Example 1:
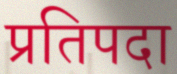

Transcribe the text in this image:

प्रतिपदा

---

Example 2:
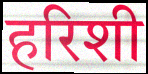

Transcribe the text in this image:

हरिशी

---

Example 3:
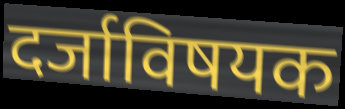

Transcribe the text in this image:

दर्जाविषयक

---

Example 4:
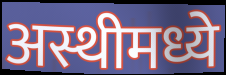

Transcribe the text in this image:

अस्थीमध्ये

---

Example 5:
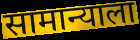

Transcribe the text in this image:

सामान्याला